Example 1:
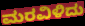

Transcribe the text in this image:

ಮರವಿಳಿದು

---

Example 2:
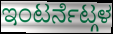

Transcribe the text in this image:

ಇಂಟರ್ನೆಟ್ಗಳ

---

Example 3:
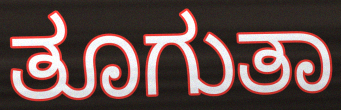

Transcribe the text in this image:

ತೂಗುತಾ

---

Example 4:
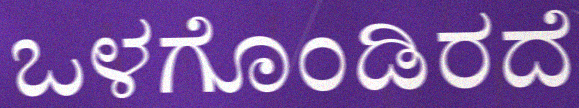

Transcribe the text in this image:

ಒಳಗೊಂಡಿರದೆ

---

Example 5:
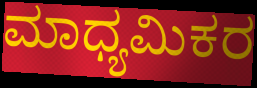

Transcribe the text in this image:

ಮಾಧ್ಯಮಿಕರ